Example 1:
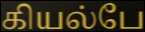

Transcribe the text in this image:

கியல்பே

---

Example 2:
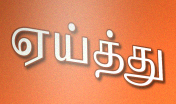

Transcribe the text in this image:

ஏய்த்து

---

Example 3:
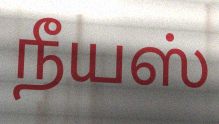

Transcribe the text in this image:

நீயஸ்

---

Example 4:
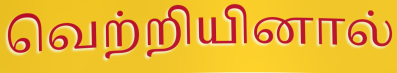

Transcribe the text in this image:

வெற்றியினால்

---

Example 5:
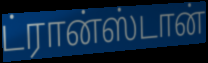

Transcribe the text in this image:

ட்ரான்ஸ்டான்